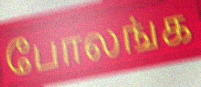
போலங்க